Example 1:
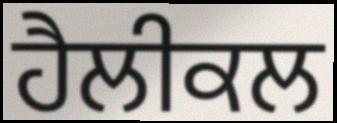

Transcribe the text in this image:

ਹੈਲੀਕਲ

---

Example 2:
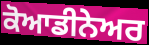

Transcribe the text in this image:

ਕੋਆਡੀਨੇਅਰ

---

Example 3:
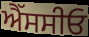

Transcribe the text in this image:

ਐੱਸਸੀਓ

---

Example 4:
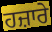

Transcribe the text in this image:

ਹਜ਼ਾਰੇ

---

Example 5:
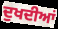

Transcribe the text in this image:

ਦੁਖਦੀਆਂ